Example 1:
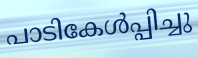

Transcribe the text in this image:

പാടികേൾപ്പിച്ചു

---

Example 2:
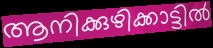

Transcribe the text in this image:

ആനിക്കുഴിക്കാട്ടിൽ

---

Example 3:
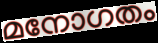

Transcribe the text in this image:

മനോഗതം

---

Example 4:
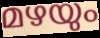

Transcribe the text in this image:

മഴയും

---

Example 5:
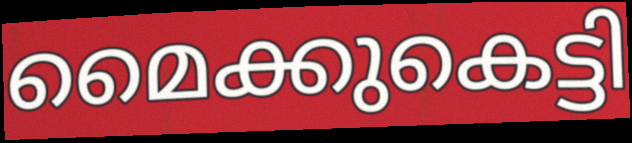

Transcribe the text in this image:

മൈക്കുകെട്ടി